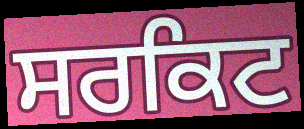
ਸਰਕਿਟ